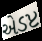
એડપ્ટ